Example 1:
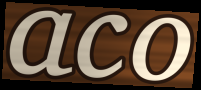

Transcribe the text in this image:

aco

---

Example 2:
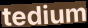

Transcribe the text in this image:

tedium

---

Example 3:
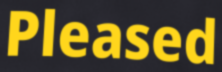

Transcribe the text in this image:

Pleased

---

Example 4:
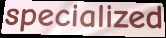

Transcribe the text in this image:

specialized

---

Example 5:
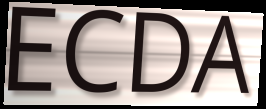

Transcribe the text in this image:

ECDA